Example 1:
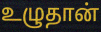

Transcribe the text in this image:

உழுதான்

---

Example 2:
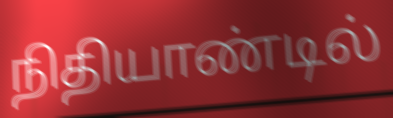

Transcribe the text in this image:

நிதியாண்டில்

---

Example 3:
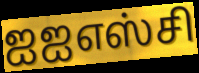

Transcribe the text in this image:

ஐஐஎஸ்சி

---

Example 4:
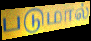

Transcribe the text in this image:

படுமால்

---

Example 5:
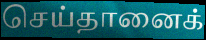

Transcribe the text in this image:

செய்தானைக்